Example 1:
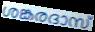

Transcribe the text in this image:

ശങ്കരദാസ്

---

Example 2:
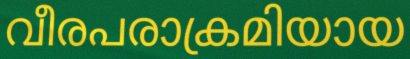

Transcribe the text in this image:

വീരപരാക്രമിയായ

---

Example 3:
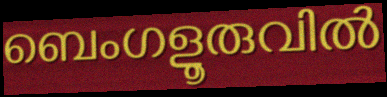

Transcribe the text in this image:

ബെംഗളൂരുവിൽ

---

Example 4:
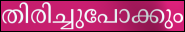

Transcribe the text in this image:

തിരിച്ചുപോക്കും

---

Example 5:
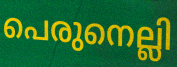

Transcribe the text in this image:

പെരുനെല്ലി